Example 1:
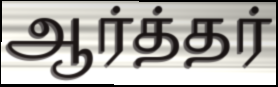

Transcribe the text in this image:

ஆர்த்தர்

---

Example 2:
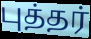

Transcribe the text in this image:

புத்தர்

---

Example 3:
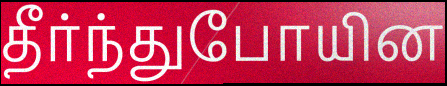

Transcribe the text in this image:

தீர்ந்துபோயின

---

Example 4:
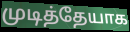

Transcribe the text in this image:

முடித்தேயாக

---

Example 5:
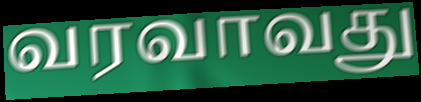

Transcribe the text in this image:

வரவாவது